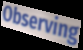
Observing